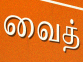
வைத்